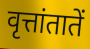
वृत्तांतातें